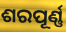
ଶରପୂର୍ଣ୍ଣ